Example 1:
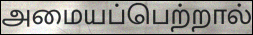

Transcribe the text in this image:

அமையப்பெற்றால்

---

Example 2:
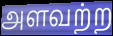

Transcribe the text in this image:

அளவற்ற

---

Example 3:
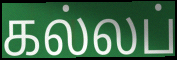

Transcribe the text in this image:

கல்லப்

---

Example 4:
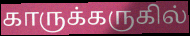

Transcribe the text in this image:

காருக்கருகில்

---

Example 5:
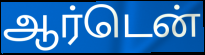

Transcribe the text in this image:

ஆர்டென்